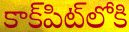
కాక్‌పిట్‌లోకి